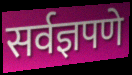
सर्वज्ञपणे